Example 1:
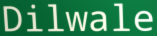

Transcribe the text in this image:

Dilwale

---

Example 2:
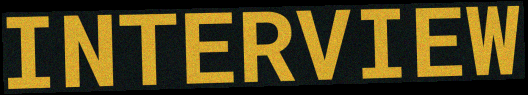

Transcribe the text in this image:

INTERVIEW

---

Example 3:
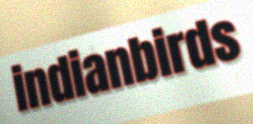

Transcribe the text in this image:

indianbirds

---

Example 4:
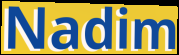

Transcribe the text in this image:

Nadim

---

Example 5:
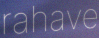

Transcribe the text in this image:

rahave